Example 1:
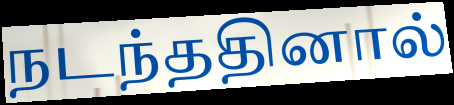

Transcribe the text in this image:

நடந்ததினால்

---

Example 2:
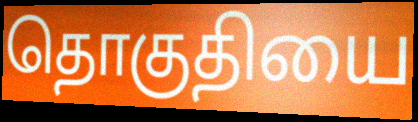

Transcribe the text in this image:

தொகுதியை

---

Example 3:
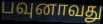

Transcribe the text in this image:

பவுனாவது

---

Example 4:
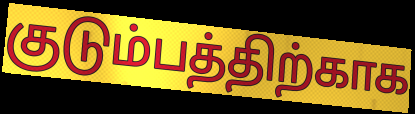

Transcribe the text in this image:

குடும்பத்திற்காக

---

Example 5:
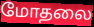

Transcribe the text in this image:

மோதலை